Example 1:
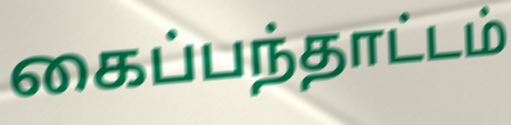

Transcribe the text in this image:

கைப்பந்தாட்டம்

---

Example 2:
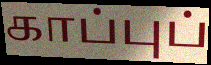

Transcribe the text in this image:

காப்புப்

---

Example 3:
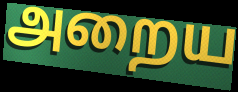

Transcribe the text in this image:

அறைய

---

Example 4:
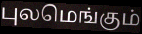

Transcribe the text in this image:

புலமெங்கும்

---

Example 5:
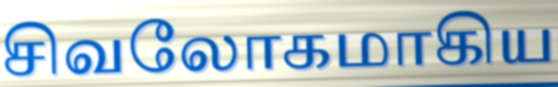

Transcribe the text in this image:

சிவலோகமாகிய